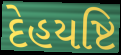
દેહયષ્ટિ